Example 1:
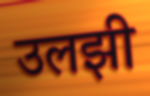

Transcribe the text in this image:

उलझी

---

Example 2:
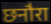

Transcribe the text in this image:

छनौरा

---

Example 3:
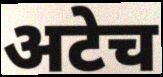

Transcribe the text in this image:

अटेच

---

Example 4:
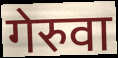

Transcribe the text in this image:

गेरुवा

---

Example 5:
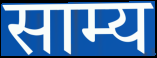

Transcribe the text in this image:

साम्‍य